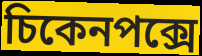
চিকেনপক্সে